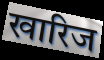
खारिज